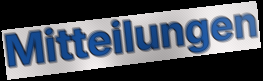
Mitteilungen